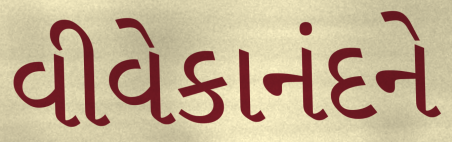
વીવેકાનંદને